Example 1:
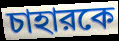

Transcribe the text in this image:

চাহারকে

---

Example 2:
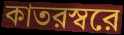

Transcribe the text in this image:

কাতরস্বরে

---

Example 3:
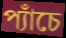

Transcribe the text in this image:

প্যাঁচে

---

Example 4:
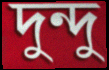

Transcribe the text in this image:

দুন্দু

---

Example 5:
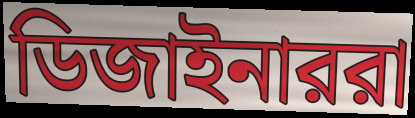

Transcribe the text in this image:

ডিজাইনাররা